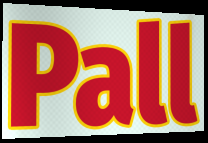
Pall